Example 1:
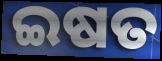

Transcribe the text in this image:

ଇଷତ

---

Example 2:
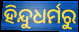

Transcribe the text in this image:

ହିନ୍ଦୁଧର୍ମରୁ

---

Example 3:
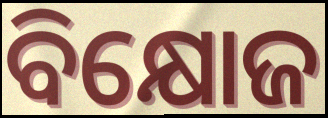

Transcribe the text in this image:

ବିକ୍ଷୋଜ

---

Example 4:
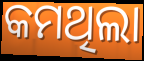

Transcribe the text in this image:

କମଥିଲା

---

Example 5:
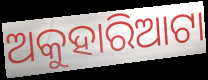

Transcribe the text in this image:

ଅକୁହାରିଆଟା